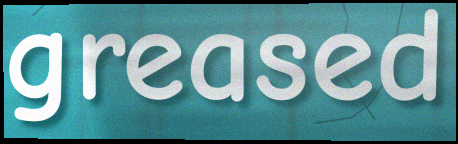
greased